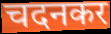
चदनकर